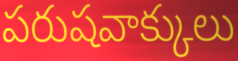
పరుషవాక్కులు